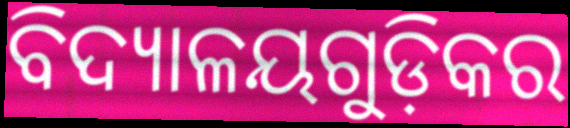
ବିଦ୍ୟାଳୟଗୁଡ଼ିକର